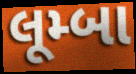
લૂમ્બા